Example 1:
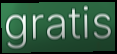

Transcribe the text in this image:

gratis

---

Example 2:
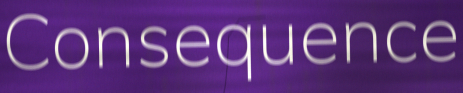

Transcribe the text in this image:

Consequence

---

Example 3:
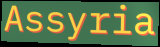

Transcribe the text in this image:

Assyria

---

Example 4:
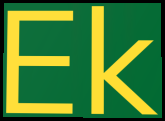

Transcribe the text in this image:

Ek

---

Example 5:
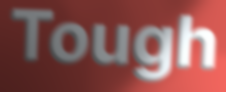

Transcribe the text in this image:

Tough